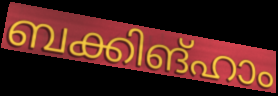
ബക്കിങ്ഹാം